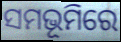
ସମଭୂମିରେ